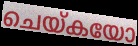
ചെയ്കയോ